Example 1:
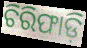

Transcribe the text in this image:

ଚିରିଫାଡ଼ି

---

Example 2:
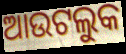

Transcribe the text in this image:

ଆଉଟଲୁକ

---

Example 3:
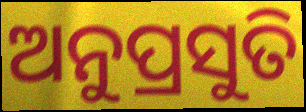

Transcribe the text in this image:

ଅନୁପ୍ରସୁତି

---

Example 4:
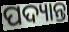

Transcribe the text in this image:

ପଦ୍ୟାନ୍ତ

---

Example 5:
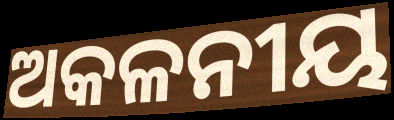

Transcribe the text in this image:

ଅକଳନୀୟ